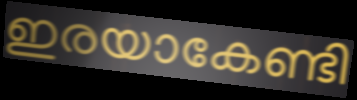
ഇരയാകേണ്ടി